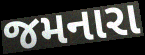
જમનારા